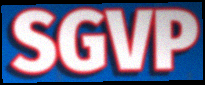
SGVP